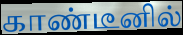
காண்டீனில்